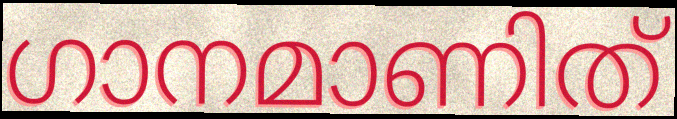
ഗാനമാണിത്